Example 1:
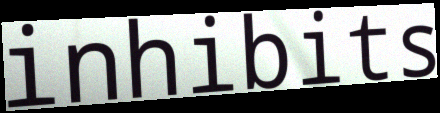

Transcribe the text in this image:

inhibits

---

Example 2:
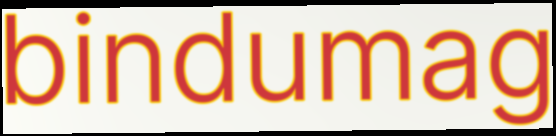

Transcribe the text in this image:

bindumag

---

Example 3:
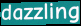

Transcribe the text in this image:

dazzling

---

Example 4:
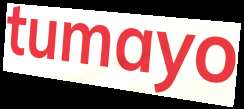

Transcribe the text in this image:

tumayo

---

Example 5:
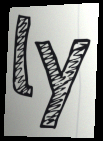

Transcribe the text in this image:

ly